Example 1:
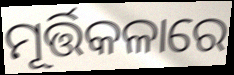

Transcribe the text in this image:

ମୂର୍ତ୍ତିକଳାରେ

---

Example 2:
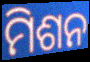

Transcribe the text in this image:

ମିଶନ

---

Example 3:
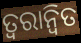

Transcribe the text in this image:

ତ୍ୱରାନ୍ୱିତ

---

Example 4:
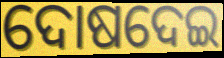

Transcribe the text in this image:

ଦୋଷଦେଇ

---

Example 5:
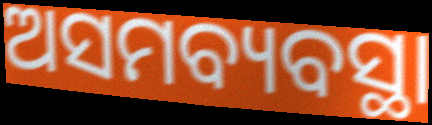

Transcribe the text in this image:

ଅସମବ୍ୟବସ୍ଥା